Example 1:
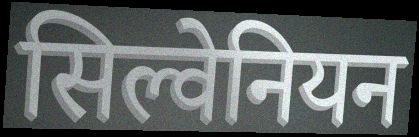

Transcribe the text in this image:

सिल्वेनियन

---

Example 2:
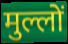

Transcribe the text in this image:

मुल्लों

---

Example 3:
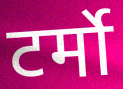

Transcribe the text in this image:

टर्मो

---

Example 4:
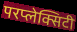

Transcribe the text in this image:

परप्लेक्सिटी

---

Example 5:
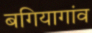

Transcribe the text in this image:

बगियागांव